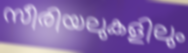
സീരിയലുകളിലും